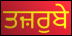
ਤਜ਼ਰੁਬੇ